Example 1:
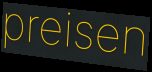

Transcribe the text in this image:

preisen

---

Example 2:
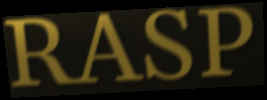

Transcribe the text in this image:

RASP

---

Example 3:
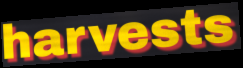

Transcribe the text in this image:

harvests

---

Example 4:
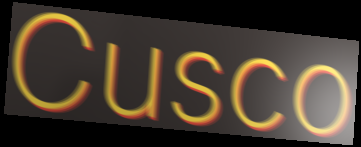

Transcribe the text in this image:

Cusco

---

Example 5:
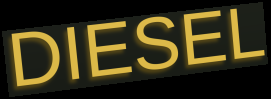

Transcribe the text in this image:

DIESEL